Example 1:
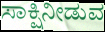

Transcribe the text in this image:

ಸಾಕ್ಷಿನೀಡುವ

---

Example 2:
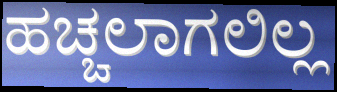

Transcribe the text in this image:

ಹಚ್ಚಲಾಗಲಿಲ್ಲ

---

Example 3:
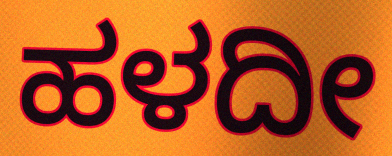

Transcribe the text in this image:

ಹಳದೀ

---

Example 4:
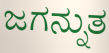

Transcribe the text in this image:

ಜಗನ್ನುತ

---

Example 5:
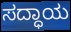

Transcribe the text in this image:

ಸದ್ಧಾಯ